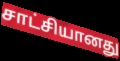
சாட்சியானது